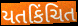
યતકિંચિત